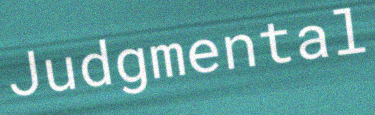
Judgmental